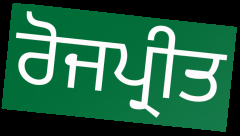
ਰੋਜਪ੍ਰੀਤ